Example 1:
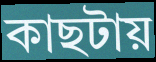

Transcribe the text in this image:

কাছটায়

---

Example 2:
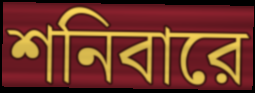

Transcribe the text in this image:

শনিবারে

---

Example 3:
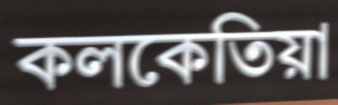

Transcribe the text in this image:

কলকেতিয়া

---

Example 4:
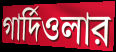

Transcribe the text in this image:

গার্দিওলার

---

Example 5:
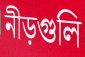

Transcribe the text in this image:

নীড়গুলি